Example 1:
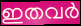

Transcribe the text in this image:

ഇതവർ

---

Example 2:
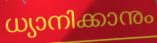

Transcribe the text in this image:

ധ്യാനിക്കാനും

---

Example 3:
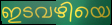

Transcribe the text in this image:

ഇടവഴിയെ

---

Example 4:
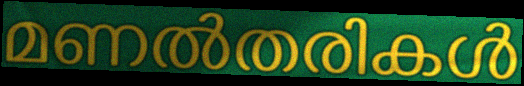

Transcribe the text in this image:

മണൽതരികൾ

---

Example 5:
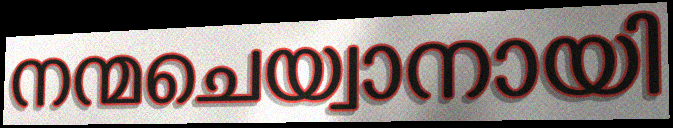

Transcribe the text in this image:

നന്മചെയ്വാനായി